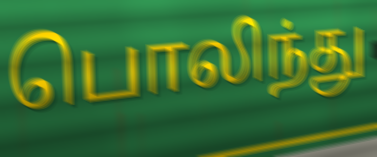
பொலிந்து